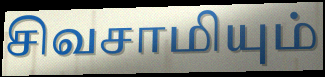
சிவசாமியும்